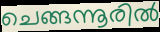
ചെങ്ങന്നൂരിൽ